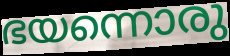
ഭയന്നൊരു